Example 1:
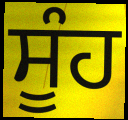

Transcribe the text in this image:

ਸੂੰਹ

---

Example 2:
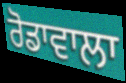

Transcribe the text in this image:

ਰੋਡਾਵਾਲਾ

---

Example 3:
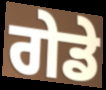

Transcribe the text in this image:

ਗੇਡੇ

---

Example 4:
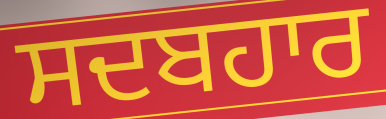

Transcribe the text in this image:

ਸਦਬਹਾਰ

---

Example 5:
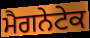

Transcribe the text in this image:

ਮੈਗਨੇਟੇਕ